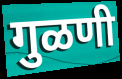
गुळणी